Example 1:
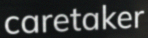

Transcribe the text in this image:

caretaker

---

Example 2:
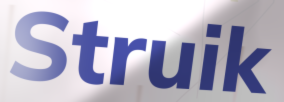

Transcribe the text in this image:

Struik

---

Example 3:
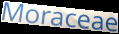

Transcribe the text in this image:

Moraceae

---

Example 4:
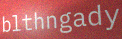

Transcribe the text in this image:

blthngady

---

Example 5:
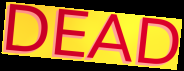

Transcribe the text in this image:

DEAD